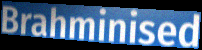
Brahminised